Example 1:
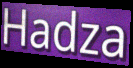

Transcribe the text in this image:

Hadza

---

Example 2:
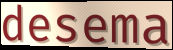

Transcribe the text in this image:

desema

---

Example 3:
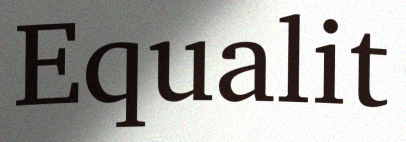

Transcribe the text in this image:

Equalit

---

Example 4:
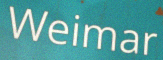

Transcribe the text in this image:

Weimar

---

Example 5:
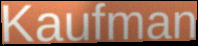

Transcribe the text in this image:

Kaufman